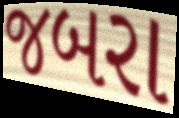
જબરા